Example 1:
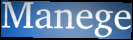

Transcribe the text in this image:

Manege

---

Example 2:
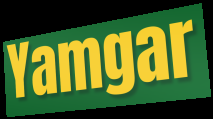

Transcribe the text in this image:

Yamgar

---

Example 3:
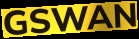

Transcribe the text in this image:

GSWAN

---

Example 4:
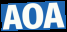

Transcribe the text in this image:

AOA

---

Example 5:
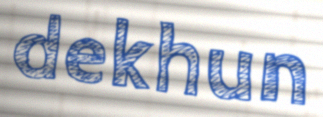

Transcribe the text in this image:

dekhun